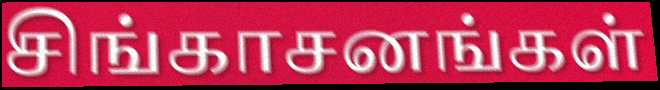
சிங்காசனங்கள்